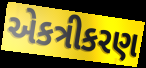
એકત્રીકરણ